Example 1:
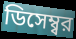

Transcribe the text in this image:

ডিসেম্ব্বর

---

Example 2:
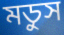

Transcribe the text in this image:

মডুস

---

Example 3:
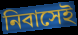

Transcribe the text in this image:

নিবাসেই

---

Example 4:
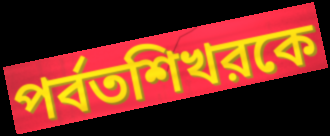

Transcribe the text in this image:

পর্বতশিখরকে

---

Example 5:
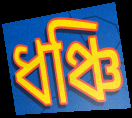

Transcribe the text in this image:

ধঞ্চি